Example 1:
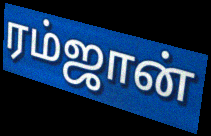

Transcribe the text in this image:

ரம்ஜான்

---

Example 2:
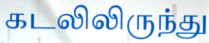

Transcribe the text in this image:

கடலிலிருந்து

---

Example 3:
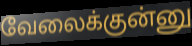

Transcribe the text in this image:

வேலைக்குன்னு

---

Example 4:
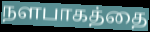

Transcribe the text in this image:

நளபாகத்தை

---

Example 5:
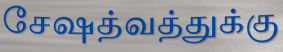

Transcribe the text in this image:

சேஷத்வத்துக்கு